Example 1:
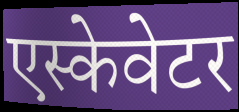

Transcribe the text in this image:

एस्केवेटर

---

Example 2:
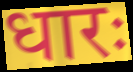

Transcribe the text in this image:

धारः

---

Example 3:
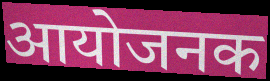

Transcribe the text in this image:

आयोजनक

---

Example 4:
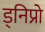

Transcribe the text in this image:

ड्निप्रो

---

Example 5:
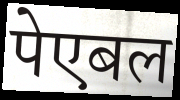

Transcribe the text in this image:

पेएबल